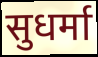
सुधर्मा